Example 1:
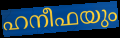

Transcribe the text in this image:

ഹനീഫയും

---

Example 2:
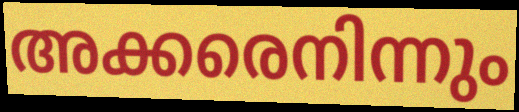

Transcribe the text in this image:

അക്കരെനിന്നും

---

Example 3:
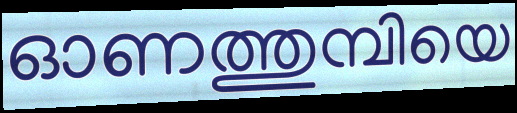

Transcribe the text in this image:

ഓണത്തുമ്പിയെ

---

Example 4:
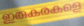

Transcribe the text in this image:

ഇരുകരകളെ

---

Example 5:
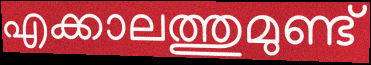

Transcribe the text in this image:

എക്കാലത്തുമുണ്ട്